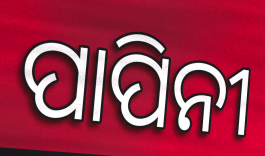
ପାପିନୀ